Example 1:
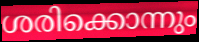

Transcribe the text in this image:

ശരിക്കൊന്നും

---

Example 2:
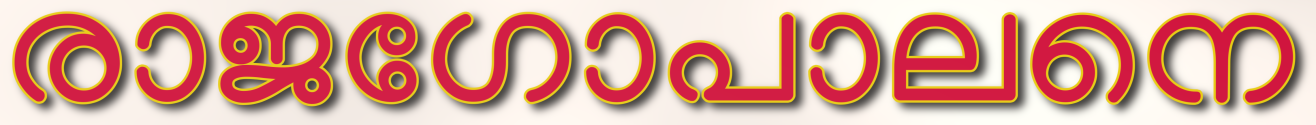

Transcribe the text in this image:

രാജഗോപാലനെ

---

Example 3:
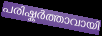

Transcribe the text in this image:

പരിഷ്കർത്താവായി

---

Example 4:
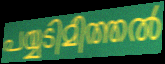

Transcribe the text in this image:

പയ്യടിമീത്തൽ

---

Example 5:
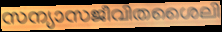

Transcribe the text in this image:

സന്യാസജീവിതശൈലി